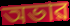
অভাৱ